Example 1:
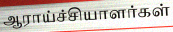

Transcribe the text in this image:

ஆராய்ச்சியாளர்கள்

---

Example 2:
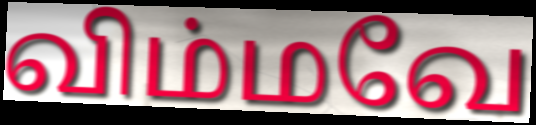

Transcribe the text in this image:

விம்மவே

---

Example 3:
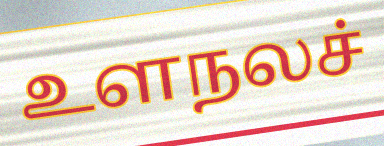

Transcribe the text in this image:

உளநலச்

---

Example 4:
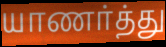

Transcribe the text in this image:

யாணர்த்து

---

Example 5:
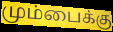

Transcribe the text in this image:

மும்பைக்கு